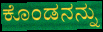
ಕೊಂಡನನ್ನು